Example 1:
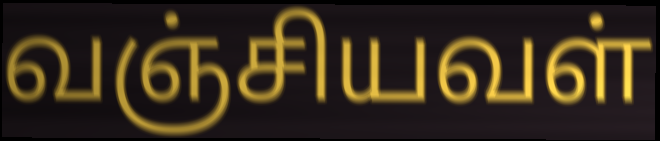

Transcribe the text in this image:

வஞ்சியவள்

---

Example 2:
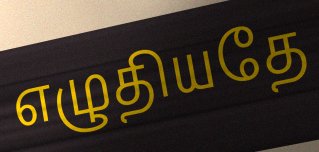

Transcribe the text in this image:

எழுதியதே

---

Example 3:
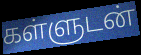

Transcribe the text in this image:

கள்ளுடன்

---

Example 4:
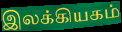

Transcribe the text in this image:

இலக்கியகம்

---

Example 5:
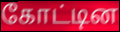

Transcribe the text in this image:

கோட்டின